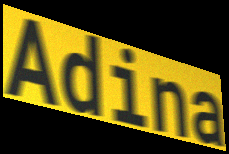
Adina